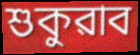
শুকুৱাব